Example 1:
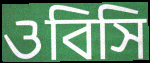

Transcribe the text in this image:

ওবিসি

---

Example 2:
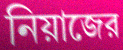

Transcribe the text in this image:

নিয়াজের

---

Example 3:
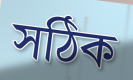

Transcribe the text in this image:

সঠিক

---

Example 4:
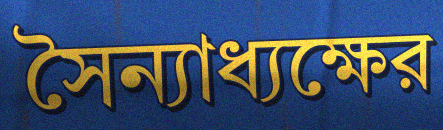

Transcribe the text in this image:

সৈন্যাধ্যক্ষের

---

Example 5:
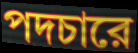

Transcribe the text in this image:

পদচারে